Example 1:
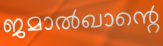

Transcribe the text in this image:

ജമാൽഖാന്റെ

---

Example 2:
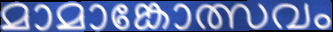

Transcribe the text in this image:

മാമാങ്കോത്സവം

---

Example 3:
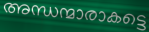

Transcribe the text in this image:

അന്ധന്മാരാകട്ടെ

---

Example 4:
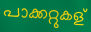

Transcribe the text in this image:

പാക്കറ്റുകള്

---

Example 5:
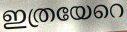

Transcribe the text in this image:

ഇത്രയേറെ